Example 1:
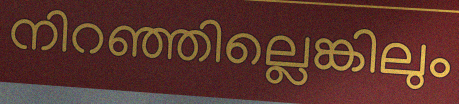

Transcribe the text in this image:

നിറഞ്ഞില്ലെങ്കിലും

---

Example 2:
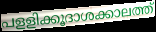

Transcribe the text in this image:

പളളിക്കൂദാശക്കാലത്ത്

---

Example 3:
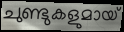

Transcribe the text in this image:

ചുണ്ടുകളുമായ്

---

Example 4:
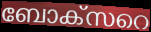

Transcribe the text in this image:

ബോക്‌സറെ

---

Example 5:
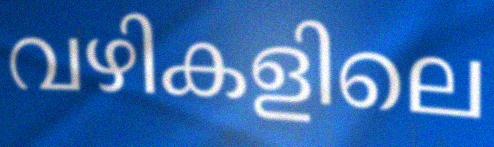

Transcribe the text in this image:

വഴികളിലെ